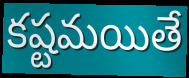
కష్టమయితే